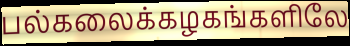
பல்கலைக்கழகங்களிலே